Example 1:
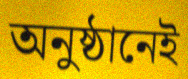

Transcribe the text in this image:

অনুষ্ঠানেই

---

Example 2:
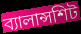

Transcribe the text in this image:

ব্যালান্সশিট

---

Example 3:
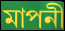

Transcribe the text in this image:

মাপনী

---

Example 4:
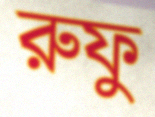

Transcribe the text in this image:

রুফু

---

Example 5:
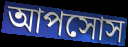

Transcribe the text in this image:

আপসোস